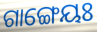
ଗାଙ୍ଗେୟଃ